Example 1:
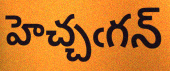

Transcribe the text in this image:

హెచ్చఁగన్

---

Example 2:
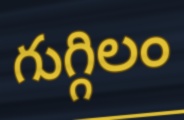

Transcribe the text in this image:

గుగ్గిలం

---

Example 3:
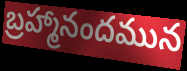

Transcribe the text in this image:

బ్రహ్మానందమున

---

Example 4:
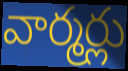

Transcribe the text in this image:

వార్మర్లు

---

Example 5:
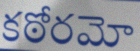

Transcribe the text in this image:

కఠోరమో